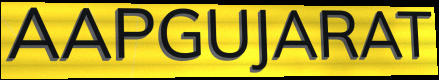
AAPGUJARAT